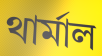
থার্মাল